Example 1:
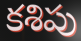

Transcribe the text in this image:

కశిపు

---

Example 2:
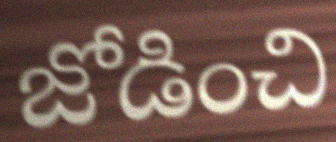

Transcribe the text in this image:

జోడించి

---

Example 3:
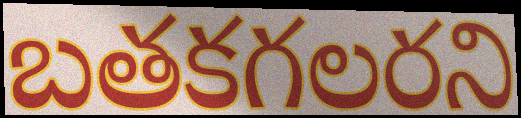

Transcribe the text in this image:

బతకగలరని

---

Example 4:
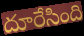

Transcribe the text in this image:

దూరేసింది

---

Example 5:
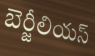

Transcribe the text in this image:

బెర్జీలియస్